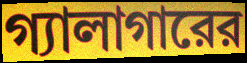
গ্যালাগারের